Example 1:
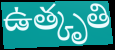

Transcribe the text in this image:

ఉత్కృతి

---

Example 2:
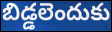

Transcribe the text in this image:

బిడ్డలెందుకు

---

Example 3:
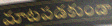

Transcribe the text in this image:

మాటపడకుండా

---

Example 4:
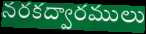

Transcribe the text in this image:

నరకద్వారములు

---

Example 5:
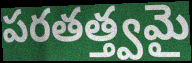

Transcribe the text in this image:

పరతత్త్వమై